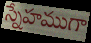
స్నేహముగా